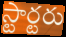
స్టార్టరు